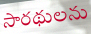
సారథులను